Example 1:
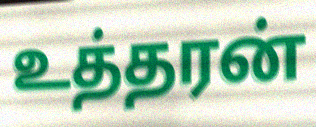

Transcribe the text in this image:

உத்தரன்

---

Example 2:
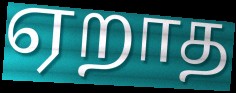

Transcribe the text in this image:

ஏறாத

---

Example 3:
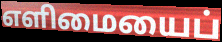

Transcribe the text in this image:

எளிமையைப்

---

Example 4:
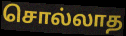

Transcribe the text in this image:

சொல்லாத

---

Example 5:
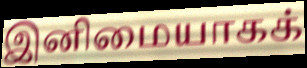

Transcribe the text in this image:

இனிமையாகக்